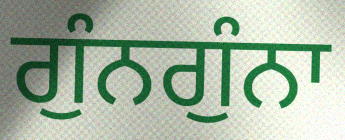
ਗੁੰਨਗੁੰਨਾ